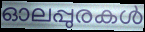
ഓലപ്പുരകൾ